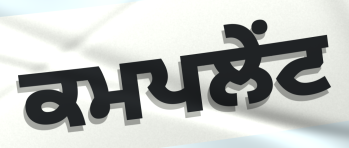
ਕਮਪਲੇਂਟ